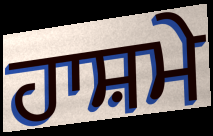
ਹਾਸ਼ਮੇ